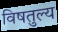
विषतुल्य